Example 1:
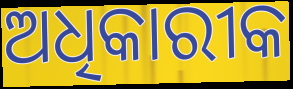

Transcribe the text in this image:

ଅଧିକାରୀକ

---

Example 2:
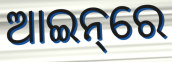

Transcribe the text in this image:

ଆଇନ୍‌ରେ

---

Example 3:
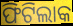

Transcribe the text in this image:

ଫିଟିଲାକ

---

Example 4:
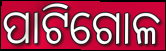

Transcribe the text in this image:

ପାଟିଗୋଳ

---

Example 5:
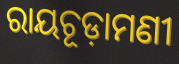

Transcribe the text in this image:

ରାୟଚୂଡ଼ାମଣୀ